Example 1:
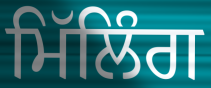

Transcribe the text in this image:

ਮਿੱਲਿੰਗ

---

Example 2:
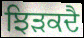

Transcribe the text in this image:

ਝਿੜਕਦੈ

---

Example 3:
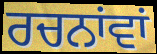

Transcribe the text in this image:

ਰਚਨਾਂਵਾਂ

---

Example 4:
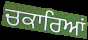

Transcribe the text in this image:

ਚਕਾਰਿਆਂ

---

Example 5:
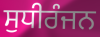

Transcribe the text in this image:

ਸੁਧੀਰੰਜਨ